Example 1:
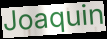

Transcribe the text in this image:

Joaquin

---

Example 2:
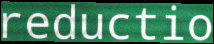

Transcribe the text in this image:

reductio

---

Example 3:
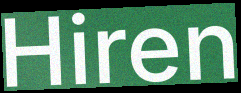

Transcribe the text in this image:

Hiren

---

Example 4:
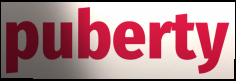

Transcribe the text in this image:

puberty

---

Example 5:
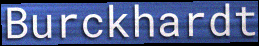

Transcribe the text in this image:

Burckhardt